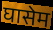
घासेम